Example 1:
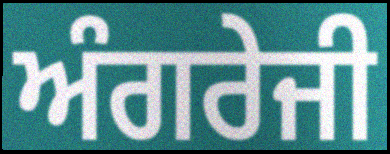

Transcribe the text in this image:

ਅੰਗਰੇਜੀ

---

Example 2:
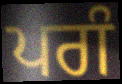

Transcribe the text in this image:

ਪਗੰ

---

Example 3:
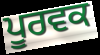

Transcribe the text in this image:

ਪੂਰਵਕ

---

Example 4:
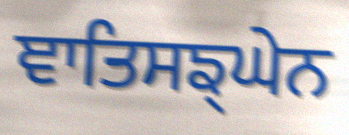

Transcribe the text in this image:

ਞਾਤਿਸਙ੍ਘੇਨ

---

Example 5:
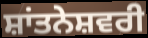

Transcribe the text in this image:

ਸ਼ਾਂਤਨੇਸ਼ਵਰੀ